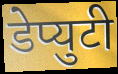
डेप्युटी